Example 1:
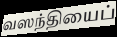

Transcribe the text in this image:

வஸந்தியைப்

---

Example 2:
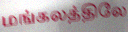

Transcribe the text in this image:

மங்கலத்திலே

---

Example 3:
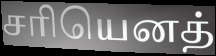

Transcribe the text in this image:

சரியெனத்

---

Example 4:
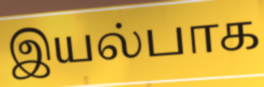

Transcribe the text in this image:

இயல்பாக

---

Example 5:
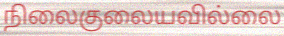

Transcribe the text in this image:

நிலைகுலையவில்லை